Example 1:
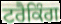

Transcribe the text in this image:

ਟਰੈਕਿੰਗ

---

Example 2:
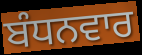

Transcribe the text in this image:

ਬੰਧਨਵਾਰ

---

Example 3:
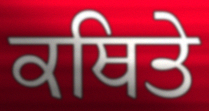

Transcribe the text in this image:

ਕਥਿਤੇ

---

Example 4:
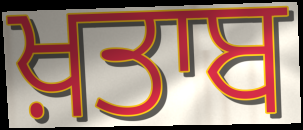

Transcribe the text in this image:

ਖ਼ਤਾਬ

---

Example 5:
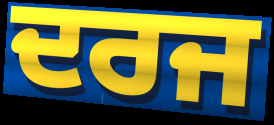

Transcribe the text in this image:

ਦਰਜ